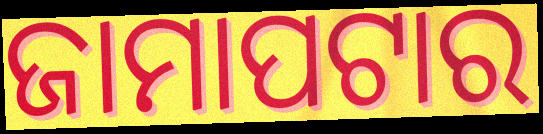
ଜାମାପଟାର